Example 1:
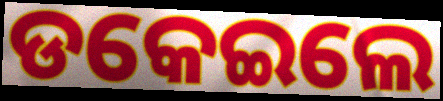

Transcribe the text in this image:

ଡକେଇଲେ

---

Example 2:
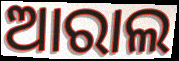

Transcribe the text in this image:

ଆରାଲ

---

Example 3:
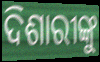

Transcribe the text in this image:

ଦିଶାରୀଙ୍କୁ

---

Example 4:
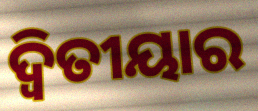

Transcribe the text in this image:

ଦ୍ଵିତୀୟାର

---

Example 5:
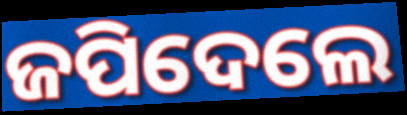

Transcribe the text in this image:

ଜପିଦେଲେ